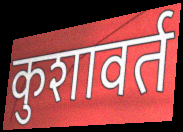
कुशावर्त